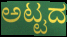
ಅಟ್ಟದ